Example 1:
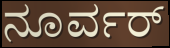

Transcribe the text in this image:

ನೂರ್ವರ್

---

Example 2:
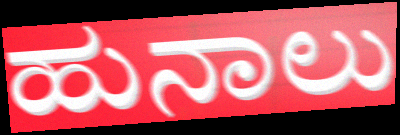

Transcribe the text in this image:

ಹುನಾಲು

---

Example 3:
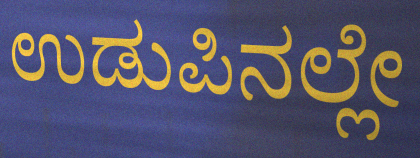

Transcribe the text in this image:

ಉಡುಪಿನಲ್ಲೇ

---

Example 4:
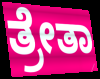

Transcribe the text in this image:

ತ್ರೇತಾ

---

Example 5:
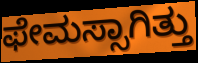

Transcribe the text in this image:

ಫೇಮಸ್ಸಾಗಿತ್ತು